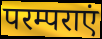
परम्पराएं